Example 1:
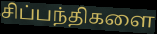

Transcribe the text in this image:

சிப்பந்திகளை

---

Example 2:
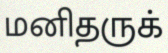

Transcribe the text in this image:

மனிதருக்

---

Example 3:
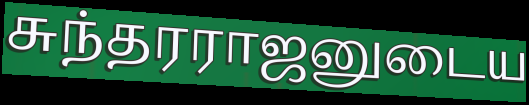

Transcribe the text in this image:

சுந்தரராஜனுடைய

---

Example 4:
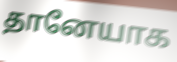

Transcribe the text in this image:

தானேயாக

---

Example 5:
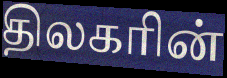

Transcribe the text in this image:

திலகரின்